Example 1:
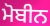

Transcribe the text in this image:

ਮੋਬੀਨ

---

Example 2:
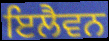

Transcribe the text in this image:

ਇਲੈਵਨ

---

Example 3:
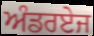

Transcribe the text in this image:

ਅੰਡਰਏਜ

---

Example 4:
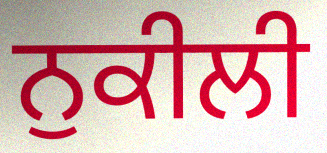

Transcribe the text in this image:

ਨੁਕੀਲੀ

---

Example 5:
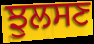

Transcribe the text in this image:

ਝੁਲਸਣ